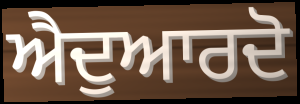
ਐਦੁਆਰਦੋ